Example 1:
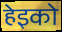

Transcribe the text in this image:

हेइको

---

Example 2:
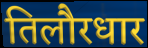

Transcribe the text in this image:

तिलौरधार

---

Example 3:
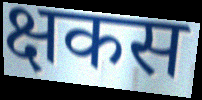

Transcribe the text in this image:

क्षकस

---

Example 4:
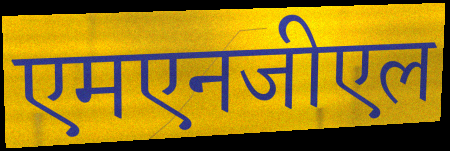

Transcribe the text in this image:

एमएनजीएल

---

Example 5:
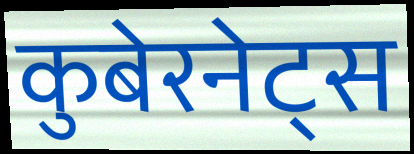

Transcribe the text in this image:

कुबेरनेट्स